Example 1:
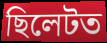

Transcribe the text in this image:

ছিলেটত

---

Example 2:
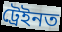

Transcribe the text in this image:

ট্ৰেইনত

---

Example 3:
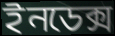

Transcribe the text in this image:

ইনডেক্স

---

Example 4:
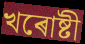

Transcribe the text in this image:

খৰোষ্টী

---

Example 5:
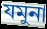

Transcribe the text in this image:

যমুনা